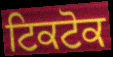
ਟਿਕਟੋਕ